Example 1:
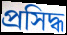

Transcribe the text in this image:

প্ৰসিদ্ধ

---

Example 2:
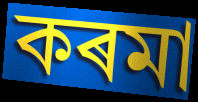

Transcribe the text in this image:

কৰমা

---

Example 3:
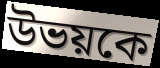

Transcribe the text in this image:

উভয়কে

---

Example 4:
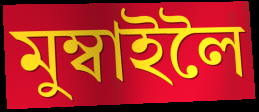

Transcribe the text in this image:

মুম্বাইলৈ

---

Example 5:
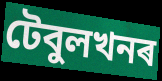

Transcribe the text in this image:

টেবুলখনৰ